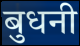
बुधनी